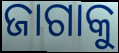
ଜାଗାକୁ